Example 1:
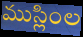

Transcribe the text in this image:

ముస్లింల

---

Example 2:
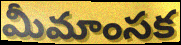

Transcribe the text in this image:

మీమాంసక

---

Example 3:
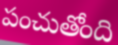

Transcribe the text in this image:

పంచుతోంది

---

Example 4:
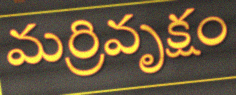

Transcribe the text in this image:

మర్రివృక్షం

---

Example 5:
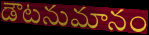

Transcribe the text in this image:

డౌటనుమానం